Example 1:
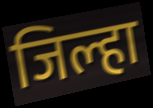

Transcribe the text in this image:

जिल्हा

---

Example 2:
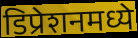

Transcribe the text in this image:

डिप्रेशनमध्ये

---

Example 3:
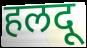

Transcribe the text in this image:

हलदू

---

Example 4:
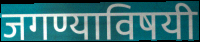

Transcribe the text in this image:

जगण्याविषयी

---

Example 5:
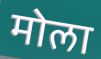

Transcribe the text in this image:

मोला